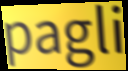
pagli